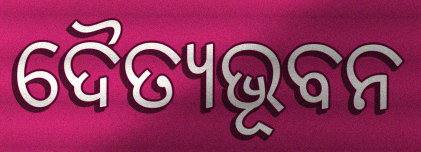
ଦୈତ୍ୟଭୂବନ